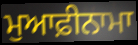
ਮੁਆਫ਼ੀਨਾਮਾ